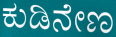
ಕುಡಿನೇಣ